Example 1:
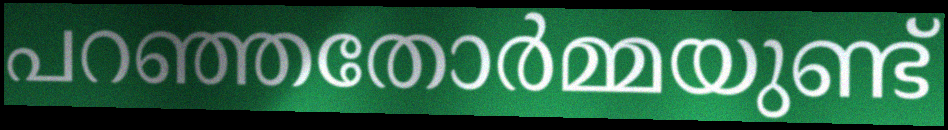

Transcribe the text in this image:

പറഞ്ഞതോർമ്മയുണ്ട്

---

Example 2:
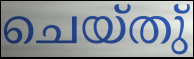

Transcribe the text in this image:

ചെയ്തു്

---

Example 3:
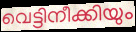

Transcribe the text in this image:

വെട്ടിനീക്കിയും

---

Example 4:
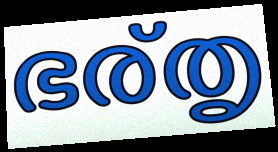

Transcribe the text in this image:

ഭര്തൃ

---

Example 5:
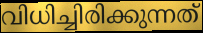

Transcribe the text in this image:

വിധിച്ചിരിക്കുന്നത്